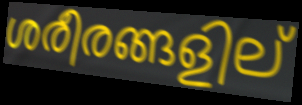
ശരീരങ്ങളില്